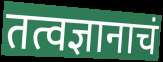
तत्वज्ञानाचं